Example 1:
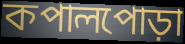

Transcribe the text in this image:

কপালপোড়া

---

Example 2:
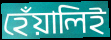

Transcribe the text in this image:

হেঁয়ালিই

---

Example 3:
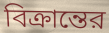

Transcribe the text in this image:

বিক্রান্তের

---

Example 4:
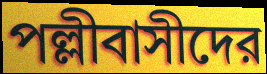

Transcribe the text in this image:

পল্লীবাসীদের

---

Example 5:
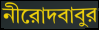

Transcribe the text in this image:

নীরোদবাবুর